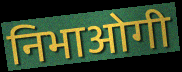
निभाओगी